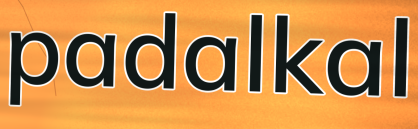
padalkal